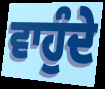
ਵਾਹੁੰਦੇ